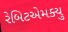
રેબિટએમક્યુ